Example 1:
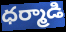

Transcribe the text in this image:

ధర్మాడి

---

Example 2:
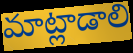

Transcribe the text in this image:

మాట్లాడాలి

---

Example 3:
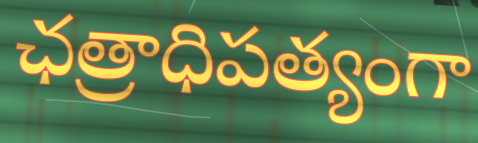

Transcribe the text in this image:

ఛత్రాధిపత్యంగా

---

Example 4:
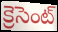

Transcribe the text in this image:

క్రెసెంట్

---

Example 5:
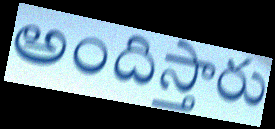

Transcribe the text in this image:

అందిస్తారు